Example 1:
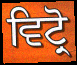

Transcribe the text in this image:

ਵਿਟ੍ਰੋ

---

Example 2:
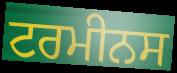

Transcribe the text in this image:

ਟਰਮੀਨਸ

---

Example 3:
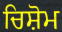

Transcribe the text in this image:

ਚਿਸ਼ੋਮ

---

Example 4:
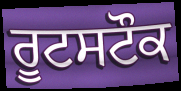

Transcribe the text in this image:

ਰੂਟਸਟੌਕ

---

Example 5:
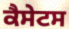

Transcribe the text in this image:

ਕੈਸੇਟਸ